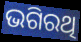
ଭଗିରଥି